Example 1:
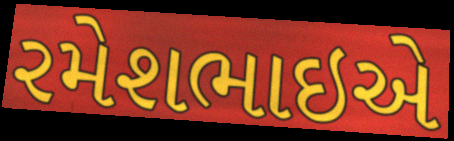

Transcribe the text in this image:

રમેશભાઇએ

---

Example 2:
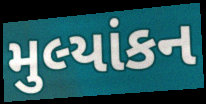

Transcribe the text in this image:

મુલ્યાંકન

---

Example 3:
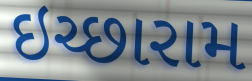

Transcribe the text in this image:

ઇચ્છારામ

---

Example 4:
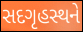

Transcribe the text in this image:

સદગૃહસ્થને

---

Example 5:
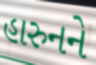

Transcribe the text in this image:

હારુનને